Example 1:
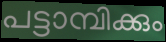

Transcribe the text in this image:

പട്ടാമ്പിക്കും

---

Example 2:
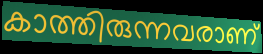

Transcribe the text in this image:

കാത്തിരുന്നവരാണ്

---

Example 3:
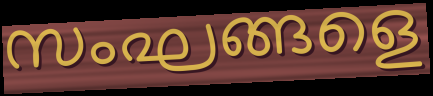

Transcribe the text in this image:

സംഘങ്ങളെ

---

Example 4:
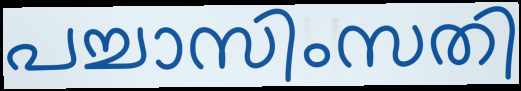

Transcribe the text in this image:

പച്ചാസിംസതി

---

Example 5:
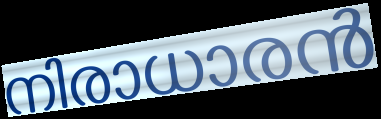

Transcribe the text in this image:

നിരാധാരൻ